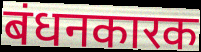
बंधनकारक